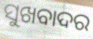
ସୁଖବାଦର